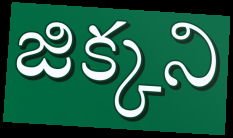
జిక్కని